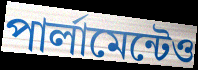
পার্লামেন্টেও